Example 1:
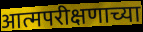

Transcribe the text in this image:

आत्मपरीक्षणाच्या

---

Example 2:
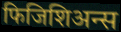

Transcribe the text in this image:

फिजिशिअन्स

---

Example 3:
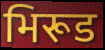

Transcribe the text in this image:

भिरूड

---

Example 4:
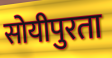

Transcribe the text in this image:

सोयीपुरता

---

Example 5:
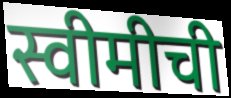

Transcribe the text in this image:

स्वीमीची